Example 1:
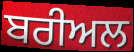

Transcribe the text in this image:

ਬਰੀਅਲ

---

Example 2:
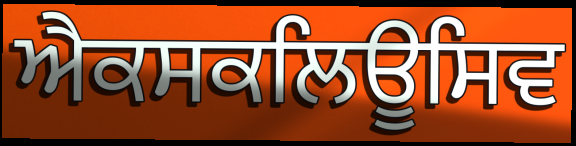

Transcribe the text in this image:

ਐਕਸਕਲਿਊਸਿਵ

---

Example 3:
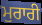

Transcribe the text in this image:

ਮੁਰਾਰੀ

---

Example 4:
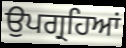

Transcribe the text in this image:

ਉਪਗ੍ਰਹਿਆਂ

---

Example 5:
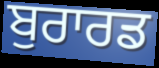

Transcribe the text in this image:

ਬੁਰਾਰਡ